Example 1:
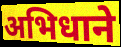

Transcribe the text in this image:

अभिधाने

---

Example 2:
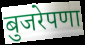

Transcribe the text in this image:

बुजरेपणा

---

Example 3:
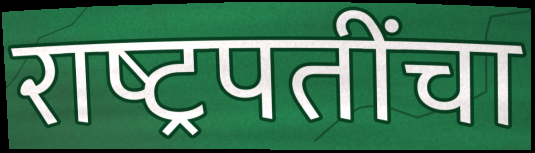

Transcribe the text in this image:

राष्ट्रपतींचा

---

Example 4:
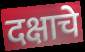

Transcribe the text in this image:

दक्षाचे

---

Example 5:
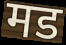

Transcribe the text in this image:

मड